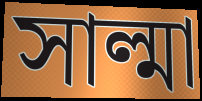
সাল্মা